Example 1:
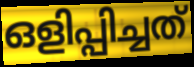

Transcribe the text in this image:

ഒളിപ്പിച്ചത്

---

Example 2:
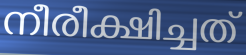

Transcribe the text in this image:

നീരീക്ഷിച്ചത്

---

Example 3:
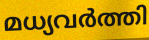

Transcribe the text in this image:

മധ്യവർത്തി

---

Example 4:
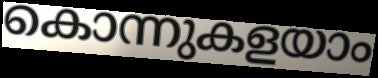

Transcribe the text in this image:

കൊന്നുകളയാം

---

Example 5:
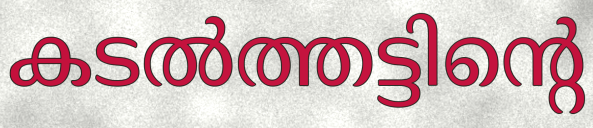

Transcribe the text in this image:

കടൽത്തട്ടിന്റെ